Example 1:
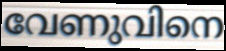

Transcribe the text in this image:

വേണുവിനെ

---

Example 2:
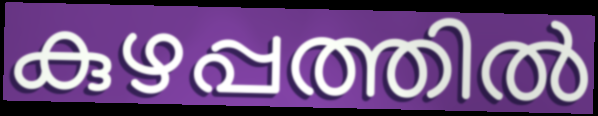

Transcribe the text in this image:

കുഴപ്പത്തിൽ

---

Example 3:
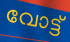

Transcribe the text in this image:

വോട്ട്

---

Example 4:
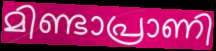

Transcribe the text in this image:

മിണ്ടാപ്രാണി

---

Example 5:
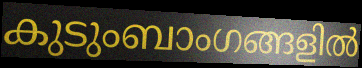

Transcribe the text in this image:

കുടുംബാംഗങ്ങളിൽ